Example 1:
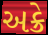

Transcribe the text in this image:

અક્રે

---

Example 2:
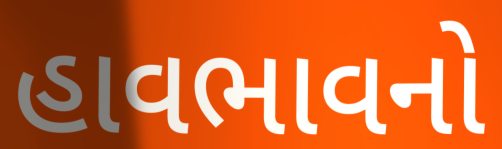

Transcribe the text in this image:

હાવભાવનો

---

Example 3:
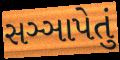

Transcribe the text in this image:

સઞ્ઞાપેતું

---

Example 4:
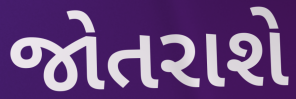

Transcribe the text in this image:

જોતરાશે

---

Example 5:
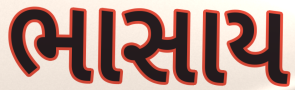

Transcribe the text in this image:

ભાસાય